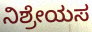
ನಿಶ್ರೇಯಸ